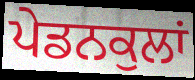
ਪੇਡਨਕੁਲਾਂ